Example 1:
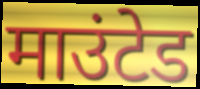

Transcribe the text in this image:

माउंटेड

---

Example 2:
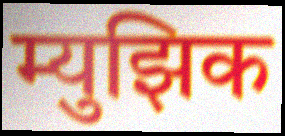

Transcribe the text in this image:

म्युझिक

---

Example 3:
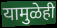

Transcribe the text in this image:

यामुळेही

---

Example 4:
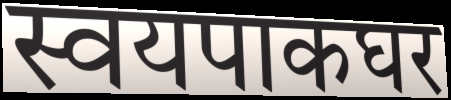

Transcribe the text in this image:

स्वयपाकघर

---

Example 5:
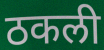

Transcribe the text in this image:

ठकली